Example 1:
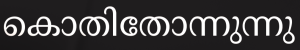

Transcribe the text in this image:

കൊതിതോന്നുന്നു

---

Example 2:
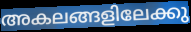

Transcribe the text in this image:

അകലങ്ങളിലേക്കു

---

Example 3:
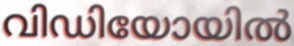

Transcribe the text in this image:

വിഡിയോയിൽ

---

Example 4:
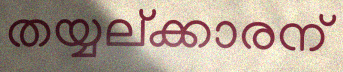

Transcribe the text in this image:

തയ്യല്ക്കാരന്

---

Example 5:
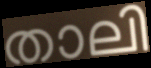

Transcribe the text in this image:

താലി